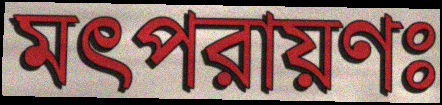
মৎপরায়ণঃ